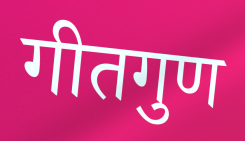
गीतगुण